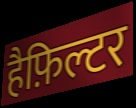
हैफ़िल्टर